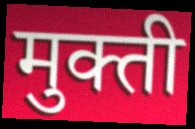
मुक्ती